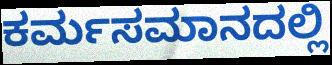
ಕರ್ಮಸಮಾನದಲ್ಲಿ